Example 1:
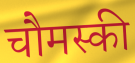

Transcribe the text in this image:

चौमस्की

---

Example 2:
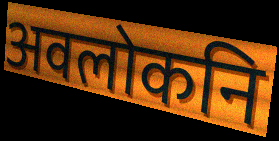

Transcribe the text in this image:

अवलोकनि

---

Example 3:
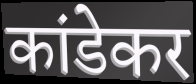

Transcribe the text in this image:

कांडेकर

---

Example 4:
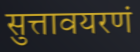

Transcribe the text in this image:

सुत्तावयरणं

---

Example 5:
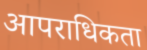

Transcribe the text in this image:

आपराधिकता